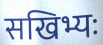
सखिभ्यः